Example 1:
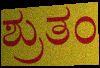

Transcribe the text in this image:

ಶ್ರುತಂ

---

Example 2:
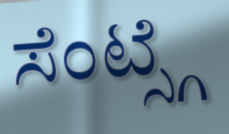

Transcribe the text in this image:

ಸೆಂಟ್ಸ್ಗೆ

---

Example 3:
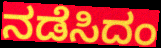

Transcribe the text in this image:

ನಡೆಸಿದಂ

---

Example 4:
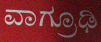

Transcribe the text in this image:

ವಾಗ್ರೂಢಿ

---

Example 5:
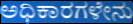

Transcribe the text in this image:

ಅಧಿಕಾರಗಳೇನು